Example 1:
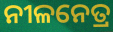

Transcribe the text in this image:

ନୀଳନେତ୍ର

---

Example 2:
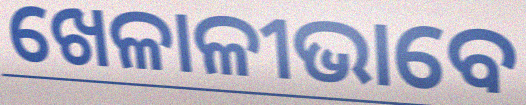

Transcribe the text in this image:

ଖେଳାଳୀଭାବେ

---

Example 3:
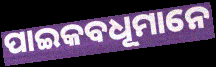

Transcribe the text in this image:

ପାଇକବଧୂମାନେ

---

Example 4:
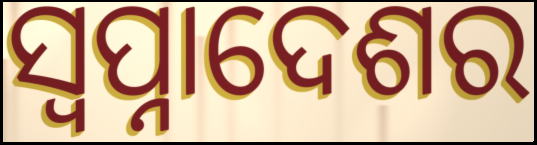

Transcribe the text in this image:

ସ୍ଵପ୍ନାଦେଶର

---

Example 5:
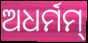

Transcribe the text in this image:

ଅଧର୍ମମ୍